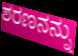
ಶರಣನನ್ನು